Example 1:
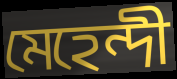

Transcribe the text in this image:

মেহেন্দী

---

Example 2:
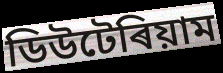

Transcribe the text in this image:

ডিউটেৰিয়াম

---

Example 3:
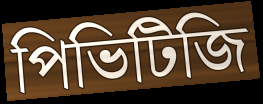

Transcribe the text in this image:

পিভিটিজি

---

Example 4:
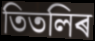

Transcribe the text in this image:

তিতলিৰ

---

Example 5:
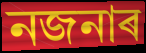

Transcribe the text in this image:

নজনাৰ